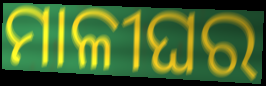
ମାଳୀଘର